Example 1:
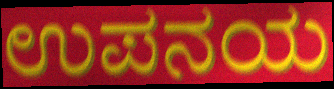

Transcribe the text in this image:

ಉಪನಯ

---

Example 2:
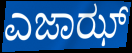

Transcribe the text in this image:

ಎಜಾಝ್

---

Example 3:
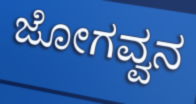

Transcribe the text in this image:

ಜೋಗವ್ವನ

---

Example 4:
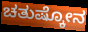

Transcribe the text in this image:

ಚತುಷ್ಕೋನ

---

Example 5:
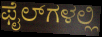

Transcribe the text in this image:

ಫೈಲ್‌ಗಳಲ್ಲಿ